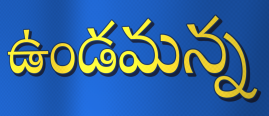
ఉండమన్న